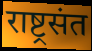
राष्ट्रसंत